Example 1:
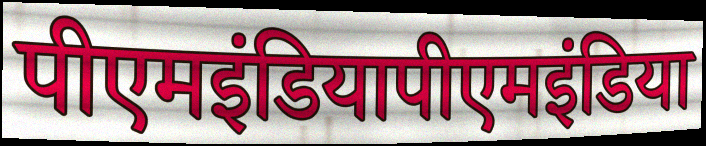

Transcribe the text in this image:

पीएमइंडियापीएमइंडिया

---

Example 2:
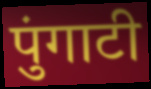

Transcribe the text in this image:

पुंगाटी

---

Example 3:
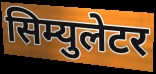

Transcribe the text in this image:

सिम्युलेटर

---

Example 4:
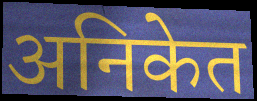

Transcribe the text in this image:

अनिकेत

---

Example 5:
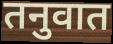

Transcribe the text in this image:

तनुवात